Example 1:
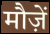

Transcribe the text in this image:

मौज़ें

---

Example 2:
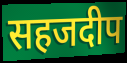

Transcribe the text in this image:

सहजदीप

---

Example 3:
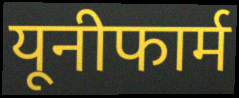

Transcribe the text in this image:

यूनीफार्म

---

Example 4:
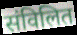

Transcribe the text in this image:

संविलित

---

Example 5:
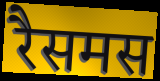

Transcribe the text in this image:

रैसमस